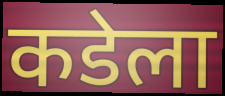
कडेला